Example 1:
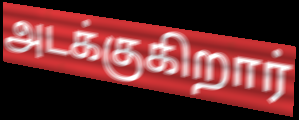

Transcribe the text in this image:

அடக்குகிறார்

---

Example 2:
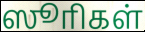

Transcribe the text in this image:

ஸூரிகள்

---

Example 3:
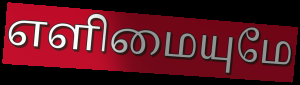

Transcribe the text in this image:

எளிமையுமே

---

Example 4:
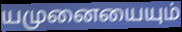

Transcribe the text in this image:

யமுனையையும்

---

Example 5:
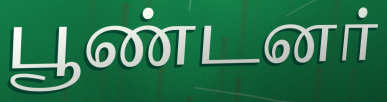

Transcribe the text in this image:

பூண்டனர்